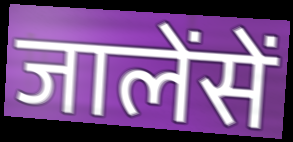
जालेंसें